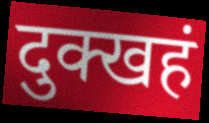
दुक्खहं